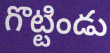
గొట్టిండు